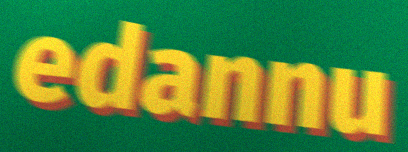
edannu